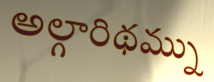
అల్గారిథమ్ను